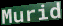
Murid